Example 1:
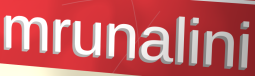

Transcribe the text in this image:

mrunalini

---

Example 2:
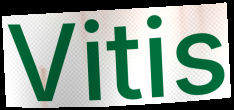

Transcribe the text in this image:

Vitis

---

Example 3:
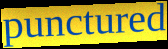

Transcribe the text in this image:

punctured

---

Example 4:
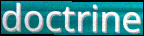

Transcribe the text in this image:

doctrine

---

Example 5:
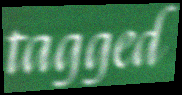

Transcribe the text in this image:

tagged